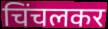
चिंचलकर